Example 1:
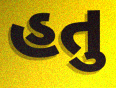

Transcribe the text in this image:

હતુ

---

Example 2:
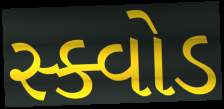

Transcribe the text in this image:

સ્ક્વોડ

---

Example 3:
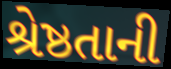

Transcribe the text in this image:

શ્રેષ્ઠતાની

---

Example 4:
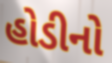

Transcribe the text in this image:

હોડીનો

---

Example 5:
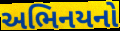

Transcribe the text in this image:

અભિનયનો